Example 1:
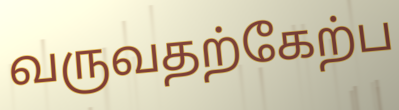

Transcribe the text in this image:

வருவதற்கேற்ப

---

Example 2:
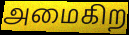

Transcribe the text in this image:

அமைகிற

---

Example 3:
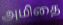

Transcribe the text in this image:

அமிதை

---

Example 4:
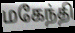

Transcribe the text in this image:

மகேந்தி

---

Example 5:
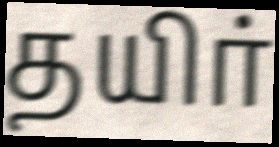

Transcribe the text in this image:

தயிர்